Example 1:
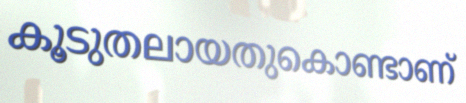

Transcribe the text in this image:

കൂടുതലായതുകൊണ്ടാണ്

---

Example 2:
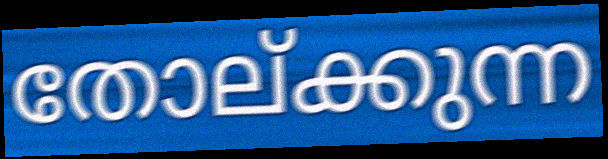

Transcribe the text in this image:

തോല്ക്കുന്ന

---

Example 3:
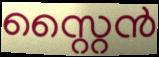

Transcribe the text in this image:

സ്റ്റൈൻ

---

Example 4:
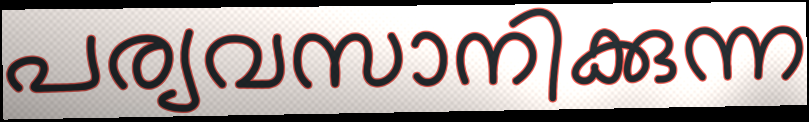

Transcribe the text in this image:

പര്യവസാനിക്കുന്ന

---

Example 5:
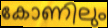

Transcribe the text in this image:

കോണിലും